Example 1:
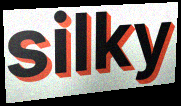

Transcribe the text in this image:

silky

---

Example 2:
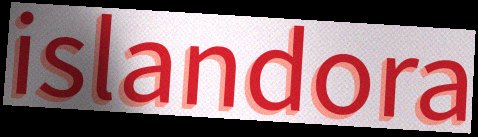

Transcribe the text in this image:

islandora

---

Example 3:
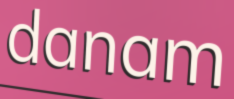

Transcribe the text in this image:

danam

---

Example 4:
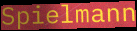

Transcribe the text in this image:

Spielmann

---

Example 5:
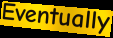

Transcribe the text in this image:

Eventually